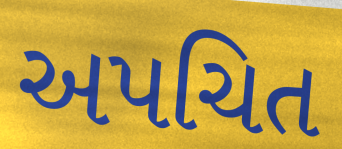
અપચિત